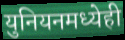
युनियनमध्येही